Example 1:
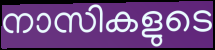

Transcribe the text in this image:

നാസികളുടെ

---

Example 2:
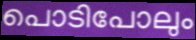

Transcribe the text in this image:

പൊടിപോലും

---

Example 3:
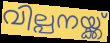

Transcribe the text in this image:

വില്പനയ്ക്ക്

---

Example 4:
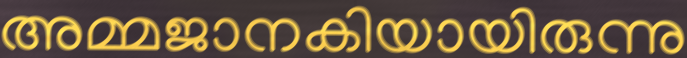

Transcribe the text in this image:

അമ്മജാനകിയായിരുന്നു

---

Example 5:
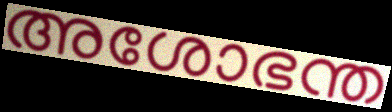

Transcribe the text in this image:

അശോഭന്ത